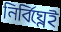
নির্বিঘ্নেই